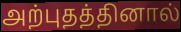
அற்புதத்தினால்